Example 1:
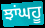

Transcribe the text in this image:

ਝਾਂਘਹੂ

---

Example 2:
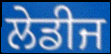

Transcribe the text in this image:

ਲੇਡੀਜ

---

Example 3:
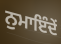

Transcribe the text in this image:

ਨੁਮਾਇੰਦੇਂ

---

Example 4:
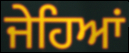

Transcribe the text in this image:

ਜੇਹਿਆਂ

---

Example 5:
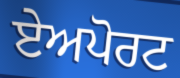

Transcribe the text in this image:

ਏਅਪੋਰਟ